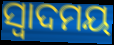
ସ୍ଵାଦମୟ